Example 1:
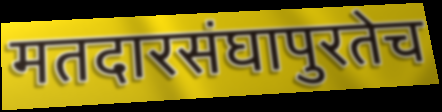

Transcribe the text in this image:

मतदारसंघापुरतेच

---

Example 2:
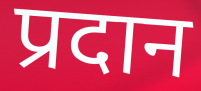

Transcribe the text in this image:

प्रदान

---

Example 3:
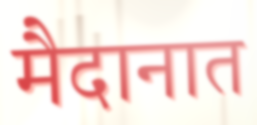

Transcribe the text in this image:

मैदानात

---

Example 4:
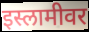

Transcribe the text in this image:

इस्लामीवर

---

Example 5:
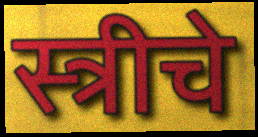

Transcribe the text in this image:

स्त्रीचे